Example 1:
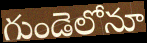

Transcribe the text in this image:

గుండెలోనూ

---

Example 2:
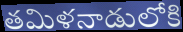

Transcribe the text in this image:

తమిళనాడులోకి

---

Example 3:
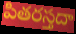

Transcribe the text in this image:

పితరస్తదా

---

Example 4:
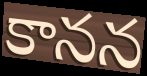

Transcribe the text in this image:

కానన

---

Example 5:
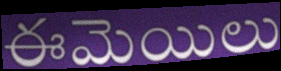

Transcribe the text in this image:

ఈమెయిలు